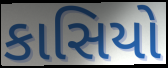
કાસિયો